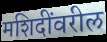
मशिदींवरील